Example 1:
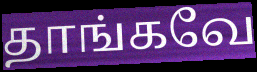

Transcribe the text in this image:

தாங்கவே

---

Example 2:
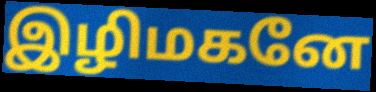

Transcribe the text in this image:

இழிமகனே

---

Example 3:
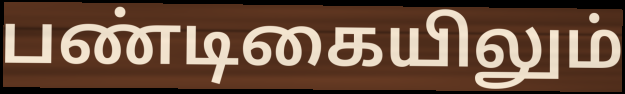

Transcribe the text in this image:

பண்டிகையிலும்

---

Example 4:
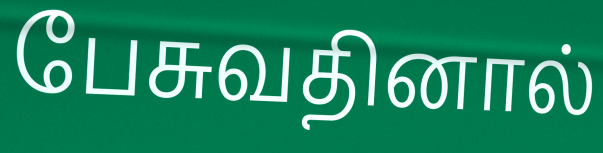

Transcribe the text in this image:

பேசுவதினால்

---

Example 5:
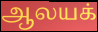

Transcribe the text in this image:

ஆலயக்